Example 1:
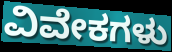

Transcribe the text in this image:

ವಿವೇಕಗಳು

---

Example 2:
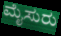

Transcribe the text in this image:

ಮೈಸುರು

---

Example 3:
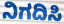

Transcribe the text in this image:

ನಿಗದಿಸಿ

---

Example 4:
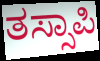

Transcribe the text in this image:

ತಸ್ಸಾಪಿ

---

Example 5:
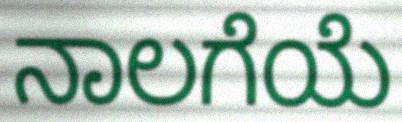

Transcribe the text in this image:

ನಾಲಗೆಯೆ